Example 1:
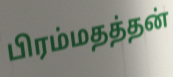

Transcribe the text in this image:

பிரம்மதத்தன்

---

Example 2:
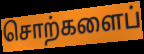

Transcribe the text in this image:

சொற்களைப்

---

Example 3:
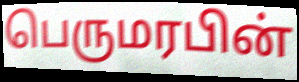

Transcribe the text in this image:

பெருமரபின்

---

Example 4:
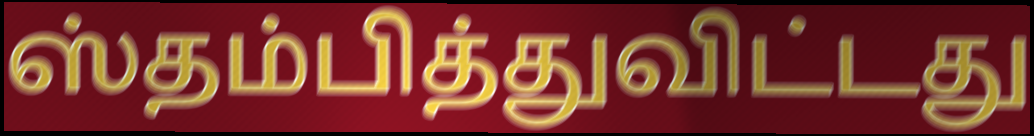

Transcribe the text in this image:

ஸ்தம்பித்துவிட்டது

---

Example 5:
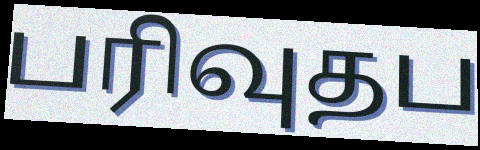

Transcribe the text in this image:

பரிவுதப